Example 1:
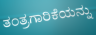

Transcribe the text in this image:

ತಂತ್ರಗಾರಿಕೆಯನ್ನು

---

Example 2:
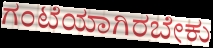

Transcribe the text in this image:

ಗಂಟೆಯಾಗಿರಬೇಕು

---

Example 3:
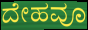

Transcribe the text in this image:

ದೇಹವೂ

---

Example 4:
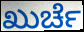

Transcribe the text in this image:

ಖುರ್ಚೆ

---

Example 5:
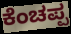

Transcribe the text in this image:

ಕೆಂಚಪ್ಪ